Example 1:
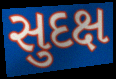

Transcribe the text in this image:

સુદક્ષ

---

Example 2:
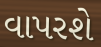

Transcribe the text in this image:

વાપરશે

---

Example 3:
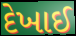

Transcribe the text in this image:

દેખાઈ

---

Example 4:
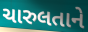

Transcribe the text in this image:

ચારુલતાને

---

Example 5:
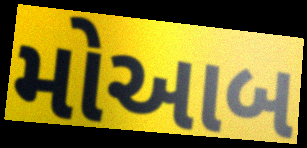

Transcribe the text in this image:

મોઆબ